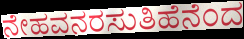
ನೇಹವನರಸುತಿಹೆನೆಂದ